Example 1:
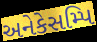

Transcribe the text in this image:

અનેકેસમ્પિ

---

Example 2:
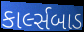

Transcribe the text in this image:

કાર્લ્સબાડ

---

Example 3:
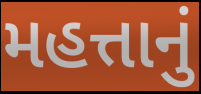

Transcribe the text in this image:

મહત્તાનું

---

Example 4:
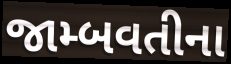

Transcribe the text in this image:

જામ્બવતીના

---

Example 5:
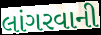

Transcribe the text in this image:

લાંગરવાની